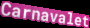
Carnavalet